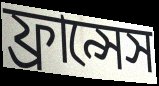
ফ্রান্সেস